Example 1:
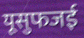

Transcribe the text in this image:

यूसुफजई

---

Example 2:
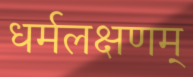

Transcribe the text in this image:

धर्मलक्षणम्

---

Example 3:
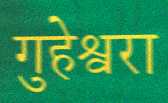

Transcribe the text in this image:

गुहेश्वरा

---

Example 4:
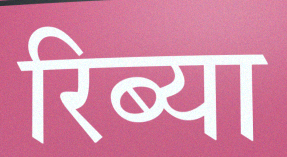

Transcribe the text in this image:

रिब्या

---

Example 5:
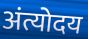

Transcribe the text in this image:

अंत्योदय